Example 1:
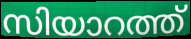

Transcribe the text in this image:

സിയാറത്ത്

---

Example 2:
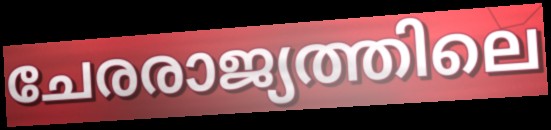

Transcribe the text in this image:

ചേരരാജ്യത്തിലെ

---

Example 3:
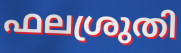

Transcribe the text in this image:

ഫലശ്രുതി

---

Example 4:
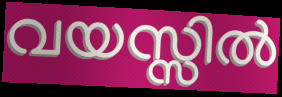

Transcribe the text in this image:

വയസ്സിൽ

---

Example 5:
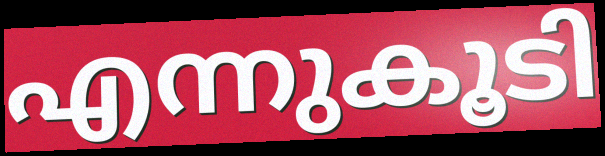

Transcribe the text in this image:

എന്നുകൂടി